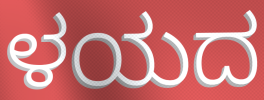
ಳಯದ